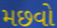
મછવો